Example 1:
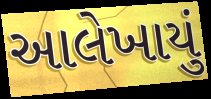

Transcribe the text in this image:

આલેખાયું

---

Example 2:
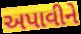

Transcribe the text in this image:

અપાવીને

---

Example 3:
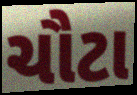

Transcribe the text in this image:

ચૌટા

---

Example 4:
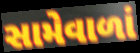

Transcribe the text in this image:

સામેવાળાં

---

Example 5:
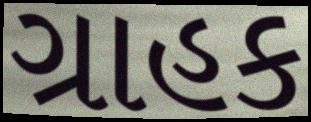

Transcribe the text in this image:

ગ્રાહક